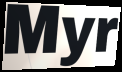
Myr